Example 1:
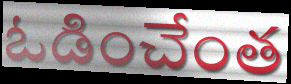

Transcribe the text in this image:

ఓడించేంత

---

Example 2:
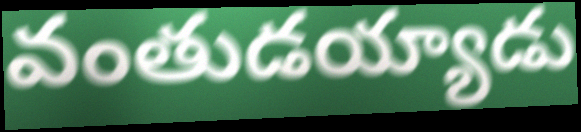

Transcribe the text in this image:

వంతుడయ్యాడు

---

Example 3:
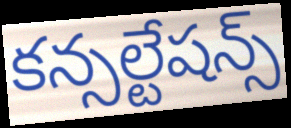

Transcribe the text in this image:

కన్సల్టేషన్స్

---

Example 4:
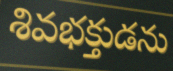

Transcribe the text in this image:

శివభక్తుడను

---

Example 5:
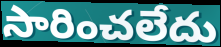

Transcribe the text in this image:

సారించలేదు